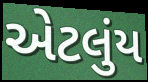
એટલુંય